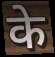
के